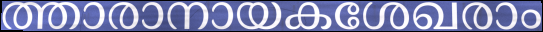
ത്താരാനായകശേഖരാം